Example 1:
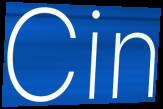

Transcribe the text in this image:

Cin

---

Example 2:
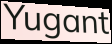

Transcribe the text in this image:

Yugant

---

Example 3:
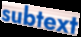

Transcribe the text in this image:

subtext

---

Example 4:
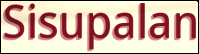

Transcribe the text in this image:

Sisupalan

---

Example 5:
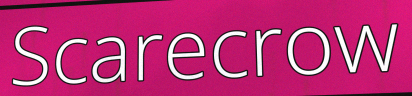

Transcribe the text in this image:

Scarecrow